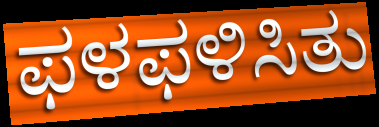
ಫಳಫಳಿಸಿತು